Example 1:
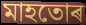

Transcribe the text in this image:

মাহতোৰ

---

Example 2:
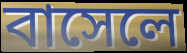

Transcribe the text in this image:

বাসেলে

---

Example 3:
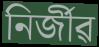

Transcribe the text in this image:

নিৰ্জীৱ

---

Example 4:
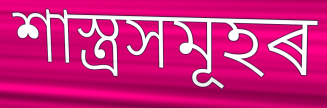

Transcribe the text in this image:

শাস্ত্ৰসমূহৰ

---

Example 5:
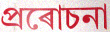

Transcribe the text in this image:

প্ৰৰোচনা